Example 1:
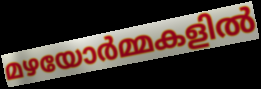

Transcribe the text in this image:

മഴയോർമ്മകളിൽ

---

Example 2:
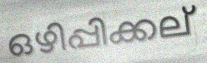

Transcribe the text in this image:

ഒഴിപ്പിക്കല്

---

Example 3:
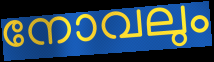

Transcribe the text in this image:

നോവലും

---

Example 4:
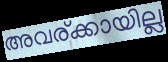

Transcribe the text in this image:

അവര്ക്കായില്ല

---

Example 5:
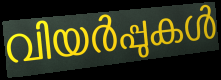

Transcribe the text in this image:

വിയർപ്പുകൾ